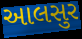
આલસુર